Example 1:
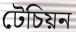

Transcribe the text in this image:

টেচিয়ন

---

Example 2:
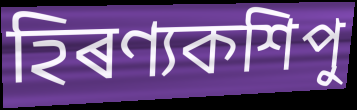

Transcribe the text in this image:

হিৰণ্যকশিপু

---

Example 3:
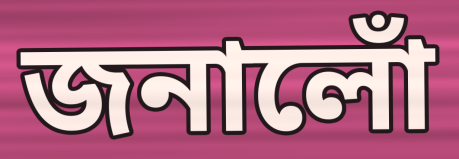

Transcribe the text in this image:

জনালোঁ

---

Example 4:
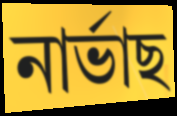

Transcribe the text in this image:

নাৰ্ভাছ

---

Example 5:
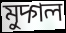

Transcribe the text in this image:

মুদ্গল